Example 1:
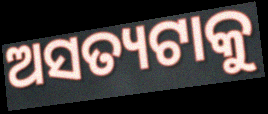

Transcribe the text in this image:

ଅସତ୍ୟଟାକୁ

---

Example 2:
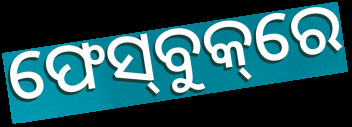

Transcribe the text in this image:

ଫେସ୍‌ବୁକ୍‌ରେ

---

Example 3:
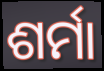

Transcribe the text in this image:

ଶର୍ମା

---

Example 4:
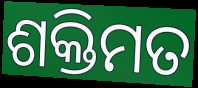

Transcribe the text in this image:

ଶକ୍ତିମତ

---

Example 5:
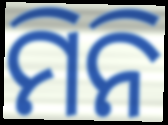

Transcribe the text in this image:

ମିନି